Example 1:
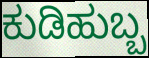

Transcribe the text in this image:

ಕುಡಿಹುಬ್ಬ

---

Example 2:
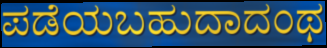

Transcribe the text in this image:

ಪಡೆಯಬಹುದಾದಂಥ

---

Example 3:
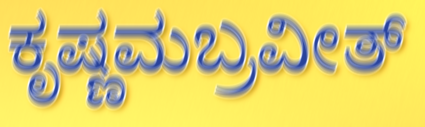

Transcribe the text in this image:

ಕೃಷ್ಣಮಬ್ರವೀತ್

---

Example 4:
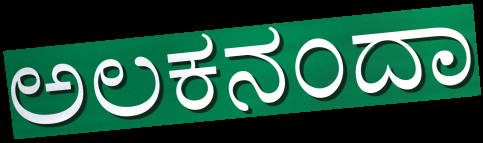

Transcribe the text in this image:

ಅಲಕನಂದಾ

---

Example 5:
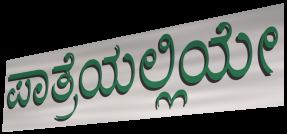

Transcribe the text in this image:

ಪಾತ್ರೆಯಲ್ಲಿಯೇ